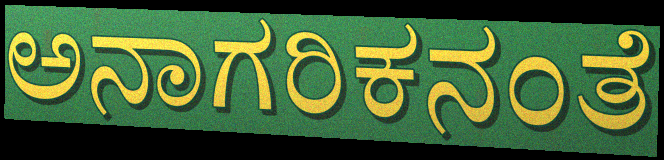
ಅನಾಗರಿಕನಂತೆ